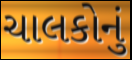
ચાલકોનું